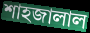
শাহজালাল